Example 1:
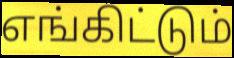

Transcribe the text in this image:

எங்கிட்டும்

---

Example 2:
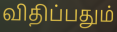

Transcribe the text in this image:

விதிப்பதும்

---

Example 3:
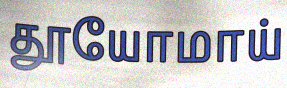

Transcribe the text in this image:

தூயோமாய்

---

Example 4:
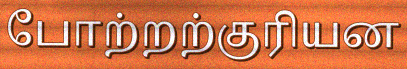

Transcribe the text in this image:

போற்றற்குரியன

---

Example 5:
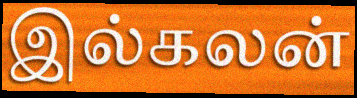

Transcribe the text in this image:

இல்கலன்